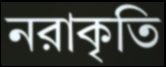
নরাকৃতি